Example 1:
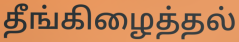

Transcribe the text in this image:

தீங்கிழைத்தல்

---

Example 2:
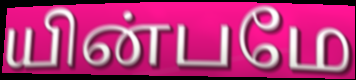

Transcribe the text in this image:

யின்பமே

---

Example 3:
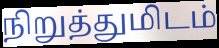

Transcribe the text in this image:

நிறுத்துமிடம்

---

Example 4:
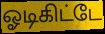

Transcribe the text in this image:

ஓடிகிட்டே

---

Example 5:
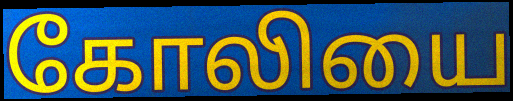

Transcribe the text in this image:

கோலியை